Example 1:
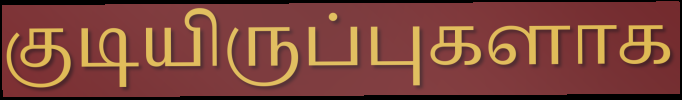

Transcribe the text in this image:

குடியிருப்புகளாக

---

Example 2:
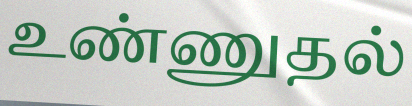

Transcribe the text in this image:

உண்ணுதல்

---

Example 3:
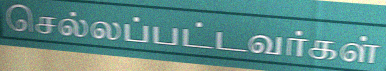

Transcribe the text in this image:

செல்லப்பட்டவர்கள்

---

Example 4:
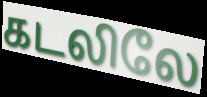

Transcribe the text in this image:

கடலிலே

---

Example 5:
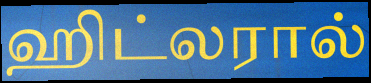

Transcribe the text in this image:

ஹிட்லரால்